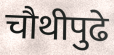
चौथीपुढे